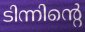
ടിന്നിന്റെ